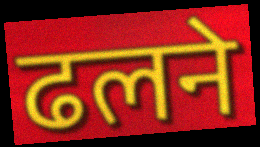
ढलने